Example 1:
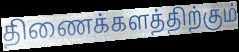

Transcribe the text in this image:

திணைக்களத்திற்கும்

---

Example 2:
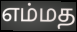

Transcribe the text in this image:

எம்மத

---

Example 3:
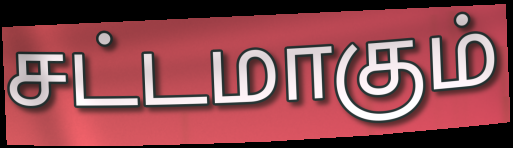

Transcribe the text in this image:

சட்டமாகும்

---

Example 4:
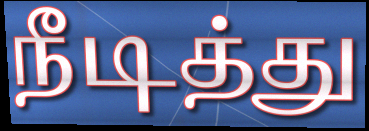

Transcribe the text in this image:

நீடித்து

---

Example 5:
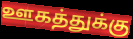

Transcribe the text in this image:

ஊகத்துக்கு